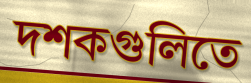
দশকগুলিতে